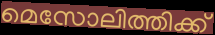
മെസോലിത്തിക്ക്